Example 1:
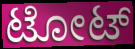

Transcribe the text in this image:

ಟೋಟ್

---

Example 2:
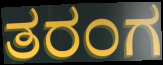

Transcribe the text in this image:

ತರಂಗ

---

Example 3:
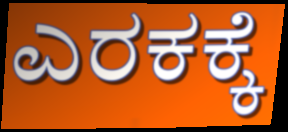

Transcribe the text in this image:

ಎರಕಕ್ಕೆ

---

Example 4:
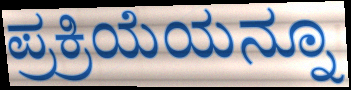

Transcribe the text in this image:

ಪ್ರಕ್ರಿಯೆಯನ್ನೂ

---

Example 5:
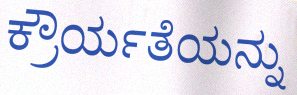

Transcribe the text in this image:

ಕ್ರೌರ್ಯತೆಯನ್ನು